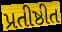
પ્રતીષ્ઠીત